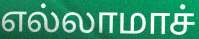
எல்லாமாச்